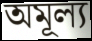
অমূল্য